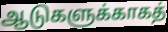
ஆடுகளுக்காகத்